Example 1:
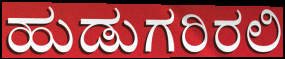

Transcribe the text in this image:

ಹುಡುಗರಿರಲಿ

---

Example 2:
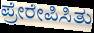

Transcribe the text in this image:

ಪ್ರೇರೇಪಿಸಿತು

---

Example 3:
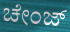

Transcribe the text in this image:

ಚೇಂಜ್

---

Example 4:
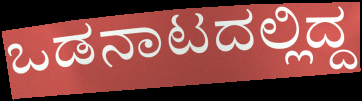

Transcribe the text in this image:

ಒಡನಾಟದಲ್ಲಿದ್ದ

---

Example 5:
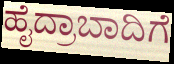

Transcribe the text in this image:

ಹೈದ್ರಾಬಾದಿಗೆ